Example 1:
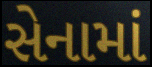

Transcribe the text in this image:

સેનામાં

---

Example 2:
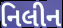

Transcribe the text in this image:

નિલીન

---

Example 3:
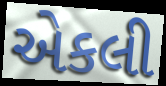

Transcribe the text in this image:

એકલી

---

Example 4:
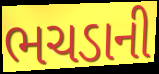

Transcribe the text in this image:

ભચડાની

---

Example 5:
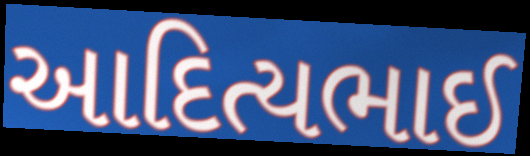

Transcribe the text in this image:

આદિત્યભાઈ